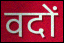
वदों